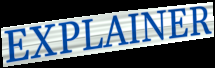
EXPLAINER